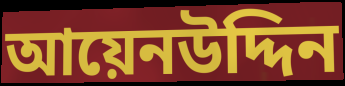
আয়েনউদ্দিন